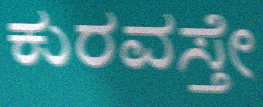
ಕುರವಸ್ತೇ